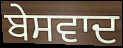
ਬੇਸਵਾਦ